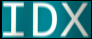
IDX